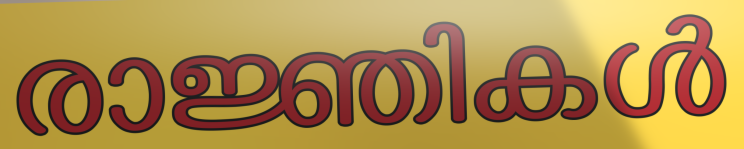
രാജ്ഞികൾ